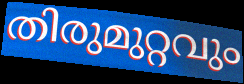
തിരുമുറ്റവും